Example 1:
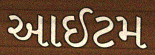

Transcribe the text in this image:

આઈટમ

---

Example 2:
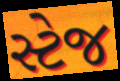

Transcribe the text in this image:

સ્ટેજ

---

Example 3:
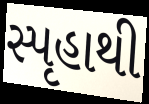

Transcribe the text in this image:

સ્પૃહાથી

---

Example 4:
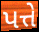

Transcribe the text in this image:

પત્તે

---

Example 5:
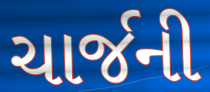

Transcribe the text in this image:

ચાર્જની